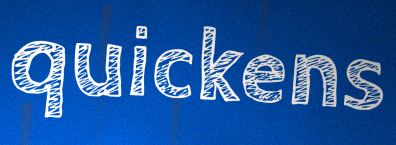
quickens